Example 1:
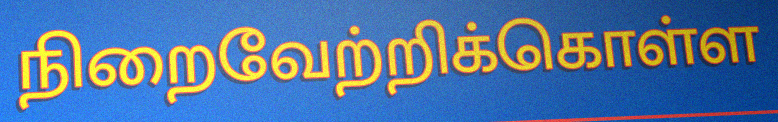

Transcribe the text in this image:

நிறைவேற்றிக்கொள்ள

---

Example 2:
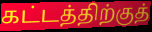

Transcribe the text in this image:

கட்டத்திற்குத்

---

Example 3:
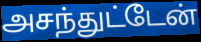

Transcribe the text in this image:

அசந்துட்டேன்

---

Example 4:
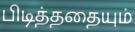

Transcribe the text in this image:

பிடித்ததையும்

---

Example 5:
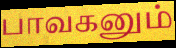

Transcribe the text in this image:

பாவகனும்